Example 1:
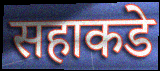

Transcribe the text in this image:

सहाकडे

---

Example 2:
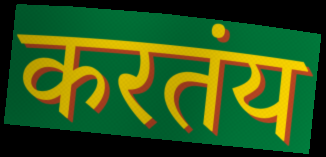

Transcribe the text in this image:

करतंय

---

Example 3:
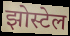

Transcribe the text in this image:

झोस्टेल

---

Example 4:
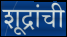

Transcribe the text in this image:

शूद्रांची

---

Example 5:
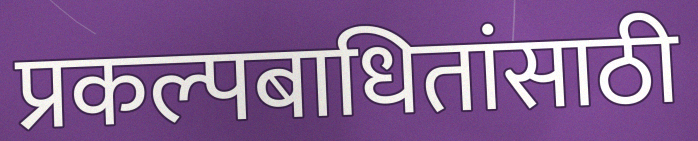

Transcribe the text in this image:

प्रकल्पबाधितांसाठी